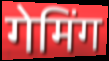
गेमिंग